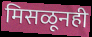
मिसळूनही